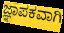
ಜ್ಞಾಪಕವಾಗಿ